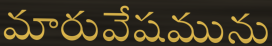
మారువేషమును